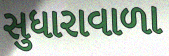
સુધારાવાળા